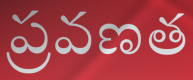
ప్రవణత